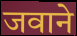
जवाने